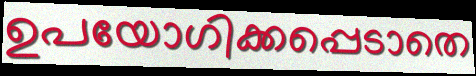
ഉപയോഗിക്കപ്പെടാതെ